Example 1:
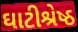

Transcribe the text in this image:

ઘાટીશ્રેષ્ઠ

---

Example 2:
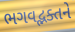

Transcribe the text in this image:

ભગવદ્ભક્તને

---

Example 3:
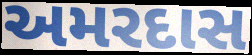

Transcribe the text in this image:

અમરદાસ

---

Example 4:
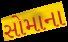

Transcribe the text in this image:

સોમાના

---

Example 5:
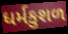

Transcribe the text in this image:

ધર્મકુશળ